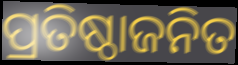
ପ୍ରତିଷ୍ଠାଜନିତ